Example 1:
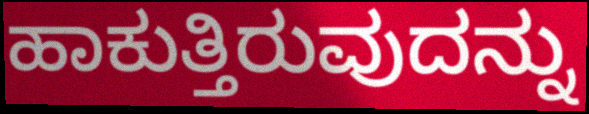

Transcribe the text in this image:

ಹಾಕುತ್ತಿರುವುದನ್ನು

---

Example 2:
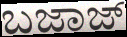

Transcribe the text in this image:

ಬಜಾಜ್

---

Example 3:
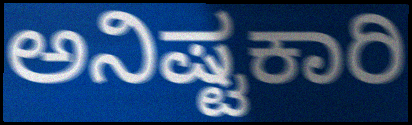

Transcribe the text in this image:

ಅನಿಷ್ಟಕಾರಿ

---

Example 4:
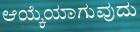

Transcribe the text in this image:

ಆಯ್ಕೆಯಾಗುವುದು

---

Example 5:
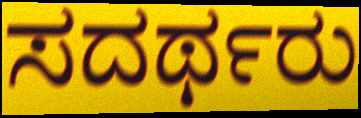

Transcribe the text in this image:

ಸದರ್ಥರು